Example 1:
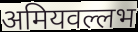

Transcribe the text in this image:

अमियवल्लभ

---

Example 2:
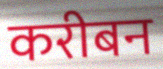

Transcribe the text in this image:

करीबन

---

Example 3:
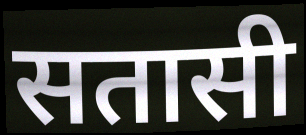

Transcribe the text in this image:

सतासी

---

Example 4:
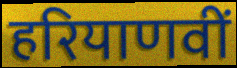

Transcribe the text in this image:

हरियाणवीं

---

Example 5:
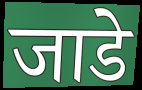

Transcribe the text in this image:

जाडे